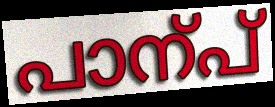
പാന്പ്